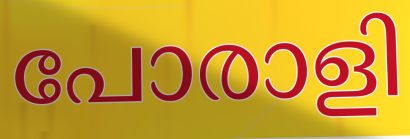
പോരാളി